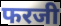
फरजी